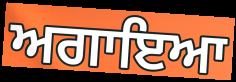
ਅਗਾਇਆ